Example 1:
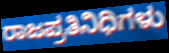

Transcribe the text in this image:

ರಾಜಪ್ರತಿನಿಧಿಗಳು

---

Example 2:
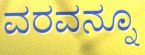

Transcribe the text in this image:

ವರವನ್ನೂ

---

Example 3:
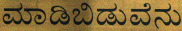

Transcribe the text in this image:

ಮಾಡಿಬಿಡುವೆನು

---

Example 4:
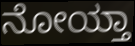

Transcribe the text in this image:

ನೋಯ್ತಾ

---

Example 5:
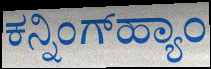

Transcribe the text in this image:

ಕನ್ನಿಂಗ್‌ಹ್ಯಾಂ